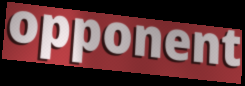
opponent